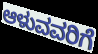
ಆಳುವವರಿಗೆ